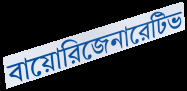
বায়োরিজেনারেটিভ